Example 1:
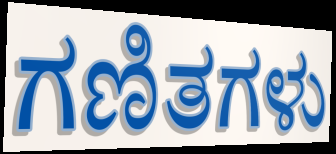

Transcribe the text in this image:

ಗಣಿತಗಳು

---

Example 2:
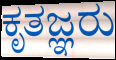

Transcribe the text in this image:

ಕೃತಜ್ಞರು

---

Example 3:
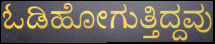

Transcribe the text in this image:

ಓಡಿಹೋಗುತ್ತಿದ್ದವು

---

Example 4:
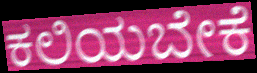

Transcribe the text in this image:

ಕಲಿಯಬೇಕೆ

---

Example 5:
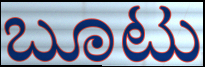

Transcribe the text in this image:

ಬೂಟು